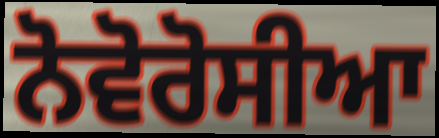
ਨੋਵੋਰੋਸੀਆ